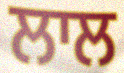
ਲਾਲ